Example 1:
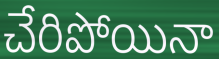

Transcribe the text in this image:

చేరిపోయినా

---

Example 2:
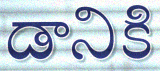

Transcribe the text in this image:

డానికి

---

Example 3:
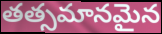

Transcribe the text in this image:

తత్సమానమైన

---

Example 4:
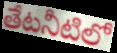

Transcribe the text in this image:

తేటనీటిలో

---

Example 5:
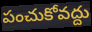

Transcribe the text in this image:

పంచుకోవద్దు